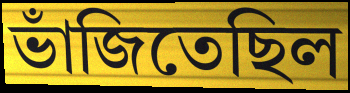
ভাঁজিতেছিল